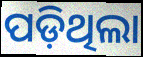
ପଡ଼ିଥିଲା